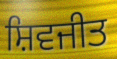
ਸ਼ਿਵਜੀਤ